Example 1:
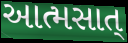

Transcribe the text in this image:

આત્મસાત્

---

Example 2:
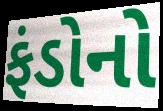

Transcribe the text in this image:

ફંડોનો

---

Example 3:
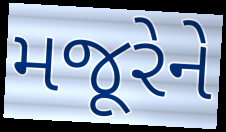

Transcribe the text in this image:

મજૂરેને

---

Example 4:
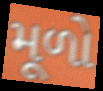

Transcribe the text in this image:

મૂળો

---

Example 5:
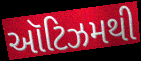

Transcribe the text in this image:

ઑટિઝમથી